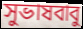
সুভাষবাবু